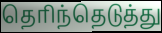
தெரிந்தெடுத்து